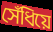
সেঁধিয়ে